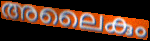
അലൈകും